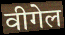
वीगेल